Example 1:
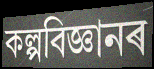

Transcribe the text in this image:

কল্পবিজ্ঞানৰ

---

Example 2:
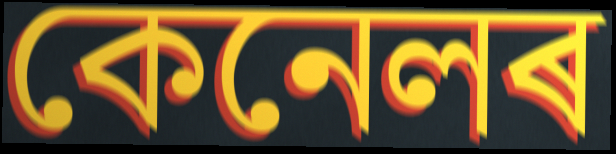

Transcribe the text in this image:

কেনেলৰ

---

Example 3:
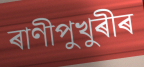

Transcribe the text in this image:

ৰাণীপুখুৰীৰ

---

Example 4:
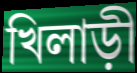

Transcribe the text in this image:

খিলাড়ী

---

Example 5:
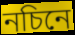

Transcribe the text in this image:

নচিনে